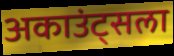
अकाउंट्सला